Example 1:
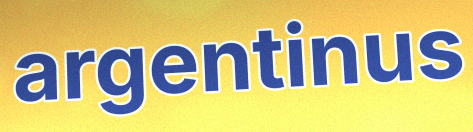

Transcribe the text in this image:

argentinus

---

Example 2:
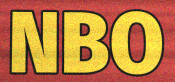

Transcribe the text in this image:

NBO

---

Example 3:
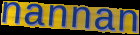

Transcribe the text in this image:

nannan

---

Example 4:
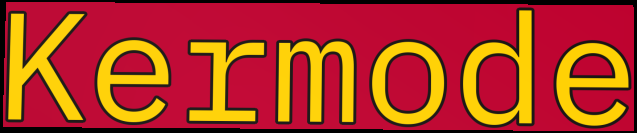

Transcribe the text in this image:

Kermode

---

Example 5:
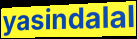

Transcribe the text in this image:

yasindalal